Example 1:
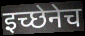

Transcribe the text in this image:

इच्छेनेच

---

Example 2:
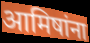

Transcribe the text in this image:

आमिषांना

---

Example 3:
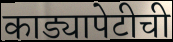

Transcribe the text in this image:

काड्यापेटीची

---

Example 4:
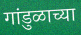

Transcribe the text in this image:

गांडुळाच्या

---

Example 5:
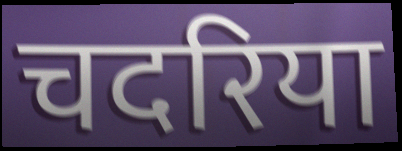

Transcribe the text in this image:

चदरिया